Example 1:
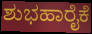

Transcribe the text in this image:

ಶುಭಹಾರೈಕೆ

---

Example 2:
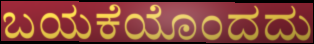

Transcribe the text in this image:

ಬಯಕೆಯೊಂದದು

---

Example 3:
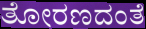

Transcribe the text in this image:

ತೋರಣದಂತೆ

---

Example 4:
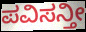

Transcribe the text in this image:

ಪವಿಸನ್ತೀ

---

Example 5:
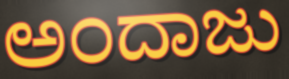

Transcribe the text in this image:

ಅಂದಾಜು